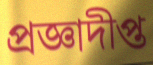
প্রজ্ঞাদীপ্ত